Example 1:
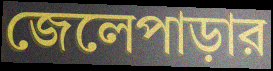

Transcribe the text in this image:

জেলেপাড়ার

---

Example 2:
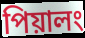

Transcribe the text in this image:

পিয়ালং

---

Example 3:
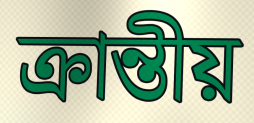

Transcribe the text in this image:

ক্রান্তীয়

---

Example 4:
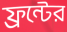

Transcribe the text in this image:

ফ্রন্টের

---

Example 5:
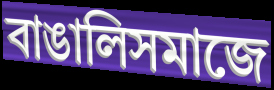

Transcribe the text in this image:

বাঙালিসমাজে